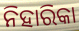
ନିହାରିକା